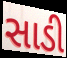
સાડી